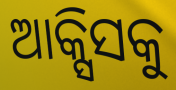
ଆକ୍ସିସକୁ